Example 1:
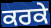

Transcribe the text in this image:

ਕਰਕੇ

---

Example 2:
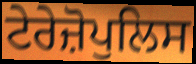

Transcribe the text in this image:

ਟੇਰੇਜ਼ੋਪੁਲਿਸ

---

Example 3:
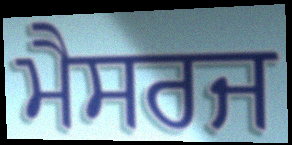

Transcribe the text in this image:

ਮੈਸਰਜ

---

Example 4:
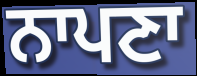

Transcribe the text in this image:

ਨਾਪਣਾ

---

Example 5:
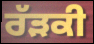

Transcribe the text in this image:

ਰੱੜਕੀ